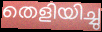
തെളിയിച്ചു